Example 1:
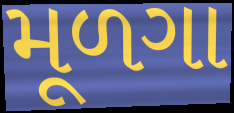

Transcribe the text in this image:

મૂળગા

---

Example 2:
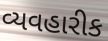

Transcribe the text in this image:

વ્યવહારીક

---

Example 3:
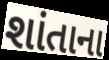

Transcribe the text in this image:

શાંતાના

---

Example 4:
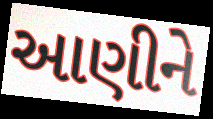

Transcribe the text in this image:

આણીને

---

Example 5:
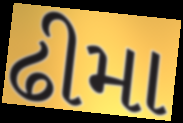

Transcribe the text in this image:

ઢીમા